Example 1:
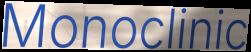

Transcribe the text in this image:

Monoclinic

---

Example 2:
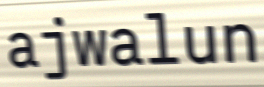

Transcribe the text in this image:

ajwalun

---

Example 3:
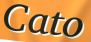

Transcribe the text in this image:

Cato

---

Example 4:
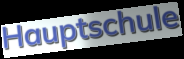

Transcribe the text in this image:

Hauptschule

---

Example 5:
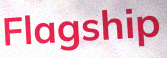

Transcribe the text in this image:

Flagship